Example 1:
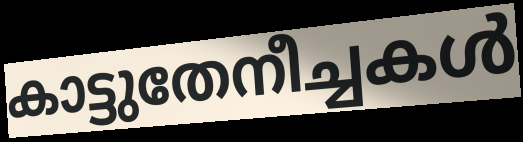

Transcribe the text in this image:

കാട്ടുതേനീച്ചകൾ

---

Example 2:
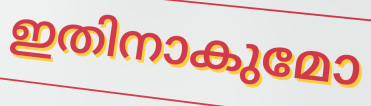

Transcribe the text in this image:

ഇതിനാകുമോ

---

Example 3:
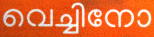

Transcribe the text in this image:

വെച്ചിനോ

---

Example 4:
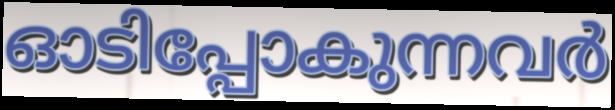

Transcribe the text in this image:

ഓടിപ്പോകുന്നവർ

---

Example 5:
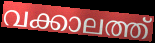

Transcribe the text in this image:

വക്കാലത്ത്